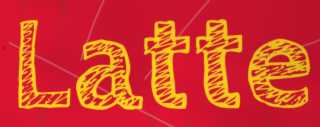
Latte